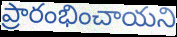
ప్రారంభించాయని